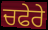
ਚਫੇਰੇ